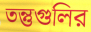
তন্তুগুলির